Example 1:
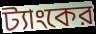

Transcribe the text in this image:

ট্যাংকের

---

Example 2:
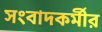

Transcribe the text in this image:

সংবাদকর্মীর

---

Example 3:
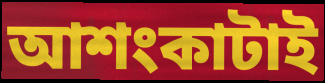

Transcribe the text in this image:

আশংকাটাই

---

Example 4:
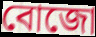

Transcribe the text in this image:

বোজো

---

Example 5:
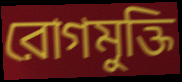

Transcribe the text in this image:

রোগমুক্তি